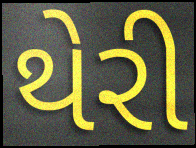
થેરી